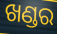
ଖଣ୍ଡର